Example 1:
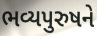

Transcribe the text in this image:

ભવ્યપુરુષને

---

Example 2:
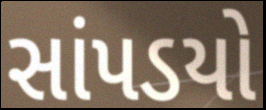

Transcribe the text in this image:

સાંપડયો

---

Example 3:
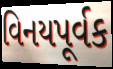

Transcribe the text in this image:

વિનયપૂર્વક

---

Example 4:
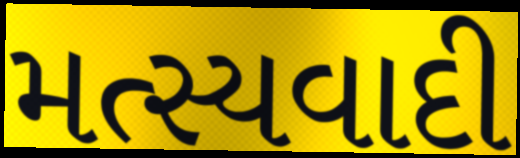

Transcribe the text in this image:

મત્સ્યવાદી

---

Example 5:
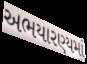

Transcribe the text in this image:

અભયારણ્યમાં